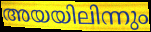
അയയിലിന്നും